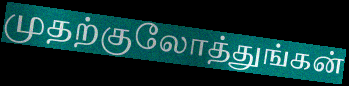
முதற்குலோத்துங்கன்